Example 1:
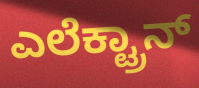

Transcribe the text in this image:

ಎಲೆಕ್ಟ್ರಾನ್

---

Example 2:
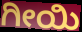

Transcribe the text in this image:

ಗೀಯಿ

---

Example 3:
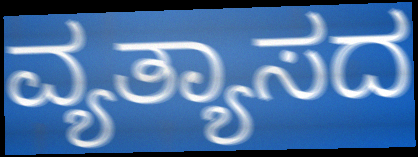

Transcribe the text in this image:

ವ್ಯತ್ಯಾಸದ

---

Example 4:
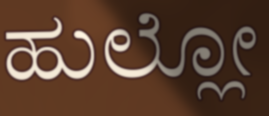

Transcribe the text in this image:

ಹುಲ್ಲೋ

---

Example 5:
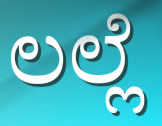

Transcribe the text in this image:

ಲಲ್ಲೆ